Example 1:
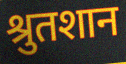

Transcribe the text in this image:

श्रुतशान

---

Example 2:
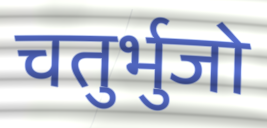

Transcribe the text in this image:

चतुर्भुजो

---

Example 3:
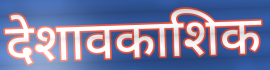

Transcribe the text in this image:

देशावकाशिक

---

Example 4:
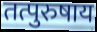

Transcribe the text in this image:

तत्पुरुषाय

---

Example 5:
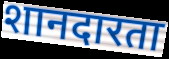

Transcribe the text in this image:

शानदारता